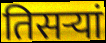
तिसऱ्यां